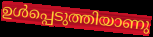
ഉൾപ്പെടുത്തിയാണു